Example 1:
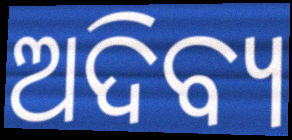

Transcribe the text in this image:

ଅଦିବ୍ୟ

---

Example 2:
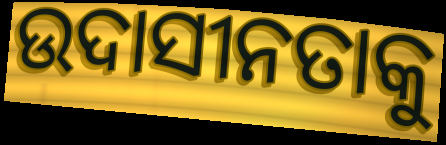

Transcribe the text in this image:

ଉଦାସୀନତାକୁ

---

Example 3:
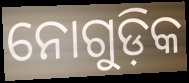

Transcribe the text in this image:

ନୋଗୁଡ଼ିକ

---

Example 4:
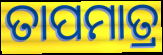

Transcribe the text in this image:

ତାପମାତ୍ର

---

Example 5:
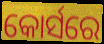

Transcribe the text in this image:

କୋର୍ସରେ